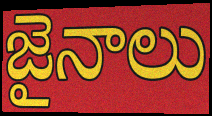
జైనాలు